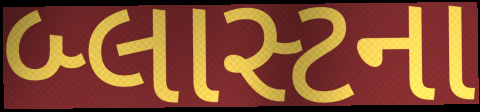
બ્લાસ્ટના